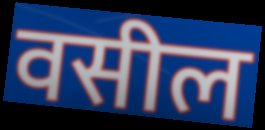
वसील